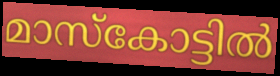
മാസ്കോട്ടിൽ